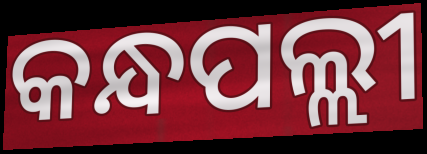
କନ୍ଧପଲ୍ଲୀ